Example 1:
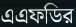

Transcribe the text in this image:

এএফডির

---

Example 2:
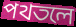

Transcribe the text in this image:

পথতলে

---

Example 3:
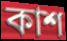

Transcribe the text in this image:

কাশ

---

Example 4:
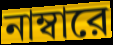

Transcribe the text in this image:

নাম্বারে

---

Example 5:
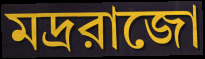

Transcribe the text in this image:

মদ্ররাজো